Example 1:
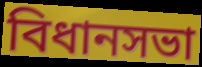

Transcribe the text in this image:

বিধানসভা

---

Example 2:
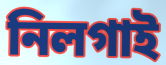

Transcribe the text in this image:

নিলগাই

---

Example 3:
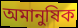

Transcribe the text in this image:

অমানুষিক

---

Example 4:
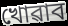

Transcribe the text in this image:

খোৱাব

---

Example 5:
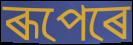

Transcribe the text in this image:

ৰূপেৰে